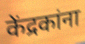
केंद्रकांना